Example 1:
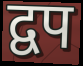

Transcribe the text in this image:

द्वप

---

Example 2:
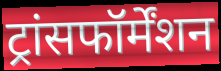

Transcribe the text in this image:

ट्रांसफॉर्मेंशन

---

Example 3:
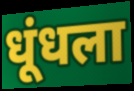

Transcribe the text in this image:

धूंधला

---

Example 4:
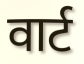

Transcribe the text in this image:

वार्ट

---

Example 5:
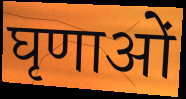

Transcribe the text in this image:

घृणाओं